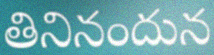
తినినందున